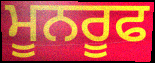
ਮੂਨਰੂਫ